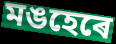
মঙহেৰে